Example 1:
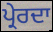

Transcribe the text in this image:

ਪ੍ਰੇਰਦਾ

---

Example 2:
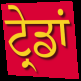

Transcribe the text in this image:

ਟ੍ਰੇਡਾਂ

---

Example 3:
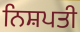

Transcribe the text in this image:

ਨਿਸ਼ਪਤੀ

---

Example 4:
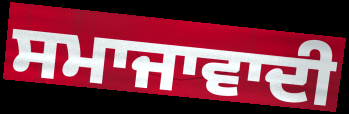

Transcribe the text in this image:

ਸਮਾਜਾਵਾਦੀ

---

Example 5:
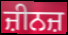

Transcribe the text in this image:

ਜ਼ੀਨਜ਼